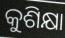
କୁଶିକ୍ଷା